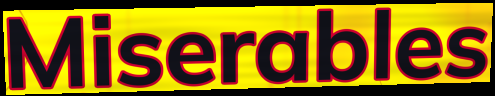
Miserables